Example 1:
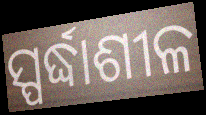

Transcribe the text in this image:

ସ୍ପର୍ଦ୍ଧାଶୀଳ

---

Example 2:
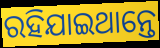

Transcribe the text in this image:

ରହିଯାଇଥାନ୍ତେ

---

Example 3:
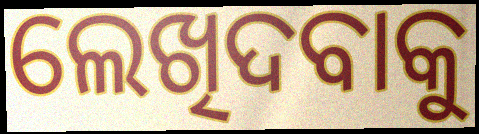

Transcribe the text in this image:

ଲେଖିଦବାକୁ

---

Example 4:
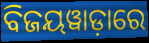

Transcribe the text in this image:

ବିଜୟୱାଡ଼ାରେ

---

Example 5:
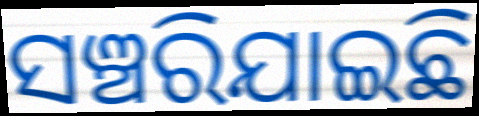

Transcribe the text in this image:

ସଞ୍ଚରିଯାଇଛି